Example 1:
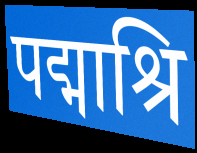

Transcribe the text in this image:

पद्माश्रि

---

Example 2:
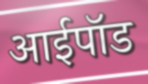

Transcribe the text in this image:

आईपॉड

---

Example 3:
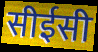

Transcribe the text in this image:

सीईसी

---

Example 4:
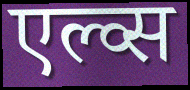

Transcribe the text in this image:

एल्व्स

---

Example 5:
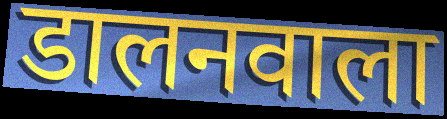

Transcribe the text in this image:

डालनवाला